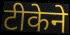
टीकेने